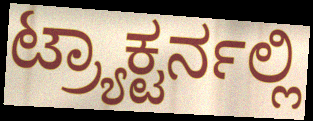
ಟ್ರ್ಯಾಕ್ಟರ್ನಲ್ಲಿ